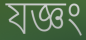
যজ্ঞং